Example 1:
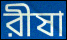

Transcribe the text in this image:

রীষা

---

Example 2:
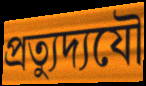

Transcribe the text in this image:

প্রত্যুদ্যযৌ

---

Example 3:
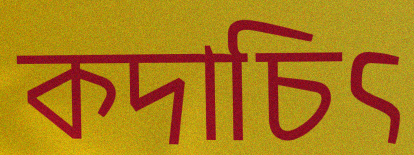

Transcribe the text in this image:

কদাচিৎ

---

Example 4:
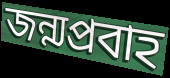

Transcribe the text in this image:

জন্মপ্রবাহ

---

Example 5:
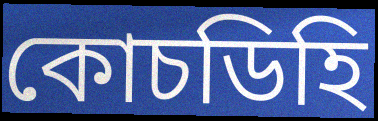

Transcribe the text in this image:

কোচডিহি